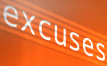
excuses